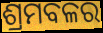
ଶ୍ରମବଳର